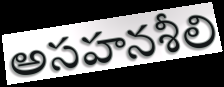
అసహనశీలి